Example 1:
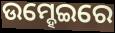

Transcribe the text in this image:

ଉମ୍ହେଇରେ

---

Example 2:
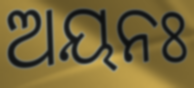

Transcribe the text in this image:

ଅୟନଃ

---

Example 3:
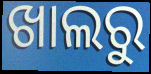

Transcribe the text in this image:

ଖାଲରୁ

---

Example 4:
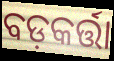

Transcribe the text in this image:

ବଡ଼କର୍ତ୍ତା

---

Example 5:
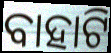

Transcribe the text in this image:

ବାହାଟି